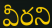
వీరని